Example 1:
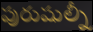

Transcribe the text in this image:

పురుషుల్నీ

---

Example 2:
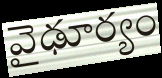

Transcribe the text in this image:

వైఢూర్యం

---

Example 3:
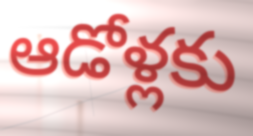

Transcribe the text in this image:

ఆడోళ్లకు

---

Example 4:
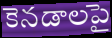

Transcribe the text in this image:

కెనడాలపై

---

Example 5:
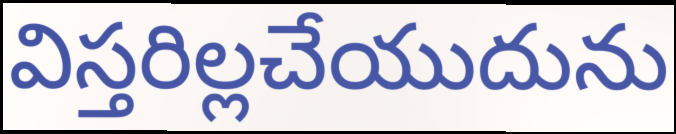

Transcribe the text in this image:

విస్తరిల్లచేయుదును